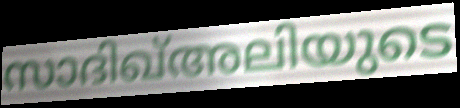
സാദിഖ്അലിയുടെ